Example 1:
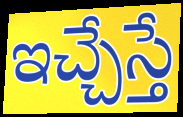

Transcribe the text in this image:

ఇచ్చేస్తే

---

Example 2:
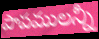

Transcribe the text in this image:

పాపములన్నీ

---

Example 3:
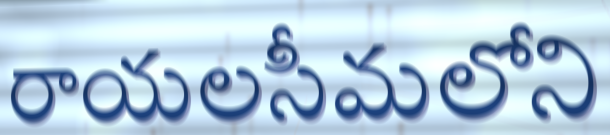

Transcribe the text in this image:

రాయలసీమలోని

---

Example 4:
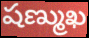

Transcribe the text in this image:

షణ్ముఖ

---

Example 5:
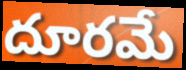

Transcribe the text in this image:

దూరమే